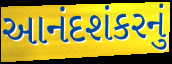
આનંદશંકરનું